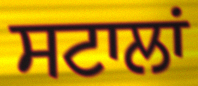
ਸਟਾਲਾਂ